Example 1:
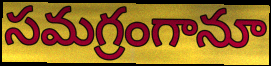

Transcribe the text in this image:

సమగ్రంగానూ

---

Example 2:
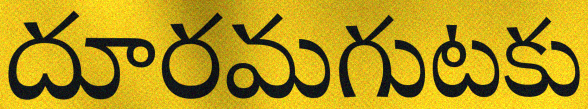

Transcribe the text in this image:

దూరమగుటకు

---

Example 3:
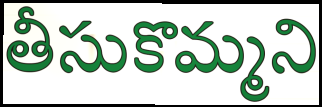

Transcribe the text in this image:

తీసుకొమ్మని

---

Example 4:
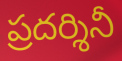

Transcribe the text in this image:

ప్రదర్శినీ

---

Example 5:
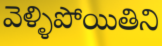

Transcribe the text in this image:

వెళ్ళిపోయితిని